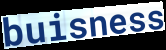
buisness